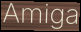
Amiga